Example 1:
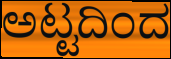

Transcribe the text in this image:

ಅಟ್ಟದಿಂದ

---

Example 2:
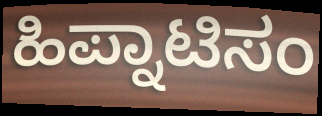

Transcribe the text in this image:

ಹಿಪ್ನಾಟಿಸಂ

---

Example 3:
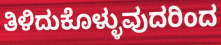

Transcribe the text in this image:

ತಿಳಿದುಕೊಳ್ಳುವುದರಿಂದ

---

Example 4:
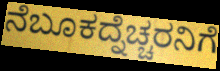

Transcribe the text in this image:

ನೆಬೂಕದ್ನೆಚ್ಚರನಿಗೆ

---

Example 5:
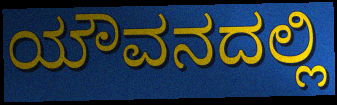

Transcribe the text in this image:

ಯೌವನದಲ್ಲಿ